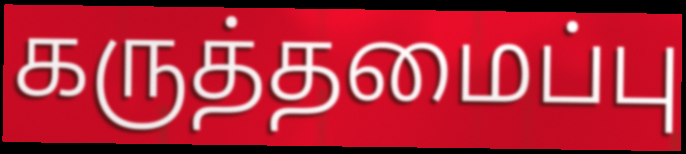
கருத்தமைப்பு